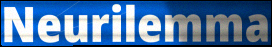
Neurilemma